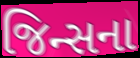
જિન્સના